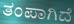
ತಂಪಾಗಿದೆ